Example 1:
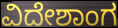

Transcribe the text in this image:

ವಿದೇಶಾಂಗ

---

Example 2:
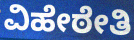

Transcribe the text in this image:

ವಿಹೇಠೇತಿ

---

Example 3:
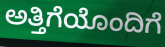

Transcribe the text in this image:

ಅತ್ತಿಗೆಯೊಂದಿಗೆ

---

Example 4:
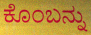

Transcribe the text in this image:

ಕೊಂಬನ್ನು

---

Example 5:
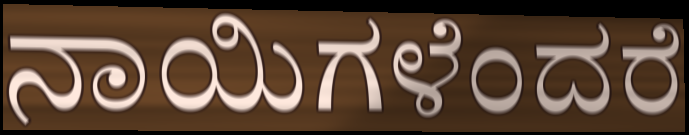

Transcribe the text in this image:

ನಾಯಿಗಳೆಂದರೆ